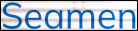
Seamen